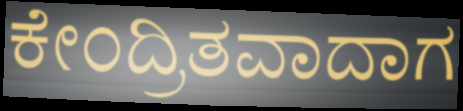
ಕೇಂದ್ರಿತವಾದಾಗ